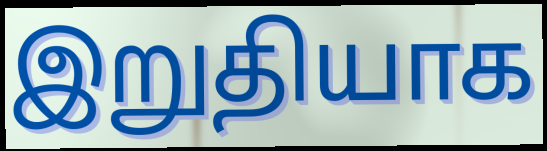
இறுதியாக